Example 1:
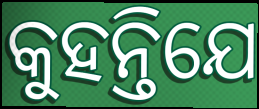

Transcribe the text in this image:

କୁହନ୍ତିଯେ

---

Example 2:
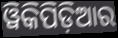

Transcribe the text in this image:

ୱିକିପିଡ଼ିଆର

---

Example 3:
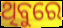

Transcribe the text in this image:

ଥିବୁରେ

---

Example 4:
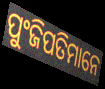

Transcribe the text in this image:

ପୁଂଜିପତିମାନେ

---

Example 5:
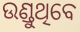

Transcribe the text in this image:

ଉଣ୍ଡୁଥିବେ